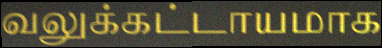
வலுக்கட்டாயமாக